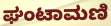
ಘಂಟಾಮಣಿ